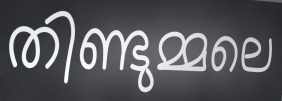
തിണ്ടുമ്മലെ